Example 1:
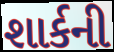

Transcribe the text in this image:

શાર્કની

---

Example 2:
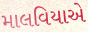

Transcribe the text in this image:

માલવિયાએ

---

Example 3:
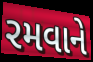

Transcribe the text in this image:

રમવાને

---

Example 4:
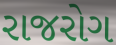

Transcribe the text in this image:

રાજરોગ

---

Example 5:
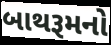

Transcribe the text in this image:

બાથરૂમનો